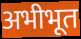
अभीभूत